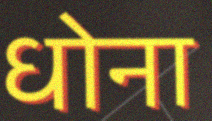
धोना